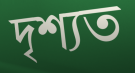
দৃশ্যত